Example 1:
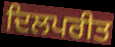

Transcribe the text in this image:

ਦਿਲਪਰੀਤ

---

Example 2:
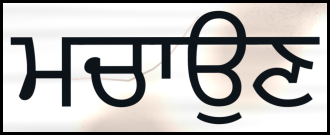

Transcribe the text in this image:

ਮਚਾਉਣ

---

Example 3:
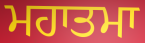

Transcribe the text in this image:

ਮਹਾਤਮਾ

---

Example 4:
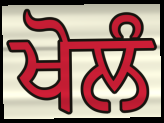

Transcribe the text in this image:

ਖੋਲੰ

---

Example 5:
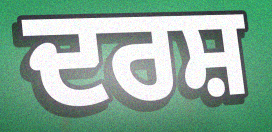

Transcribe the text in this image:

ਦਰਸ਼